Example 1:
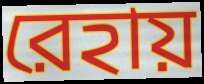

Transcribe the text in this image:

রেহায়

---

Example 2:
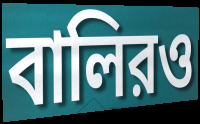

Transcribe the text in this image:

বালিরও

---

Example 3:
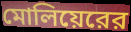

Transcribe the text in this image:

মোলিয়েরের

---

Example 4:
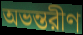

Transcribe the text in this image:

অভন্তরীণ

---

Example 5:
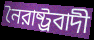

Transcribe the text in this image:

নৈরাষ্ট্রবাদী